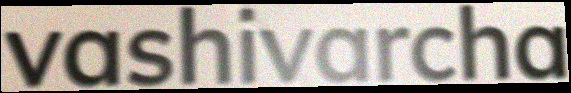
vashivarcha